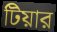
টিয়ার